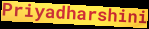
Priyadharshini